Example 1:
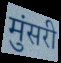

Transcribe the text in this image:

मुंसरी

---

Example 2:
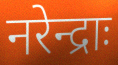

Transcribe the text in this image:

नरेन्द्राः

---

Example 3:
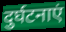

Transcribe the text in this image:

दुर्घटनाएं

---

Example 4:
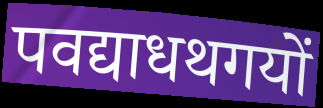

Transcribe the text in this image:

पवद्याधथगयों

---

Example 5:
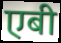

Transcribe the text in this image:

एबी